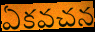
ఏకవచన